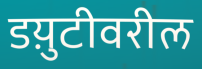
डय़ुटीवरील